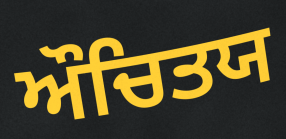
ਔਚਿਤਯ